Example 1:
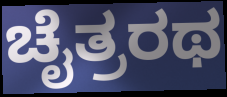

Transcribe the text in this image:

ಚೈತ್ರರಥ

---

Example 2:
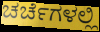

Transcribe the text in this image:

ಚರ್ಚೆಗಳಲ್ಲಿ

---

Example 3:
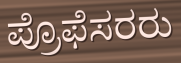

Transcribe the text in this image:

ಪ್ರೊಫೆಸರರು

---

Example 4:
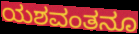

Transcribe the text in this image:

ಯಶವಂತನೂ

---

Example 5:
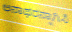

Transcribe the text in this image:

ಅನಾಥರನ್ನಾಗಿಸಿ